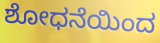
ಶೋಧನೆಯಿಂದ